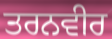
ਤਰਨਵੀਰ